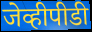
जेव्हीपीडी